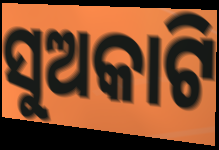
ସୁଅକାଟି